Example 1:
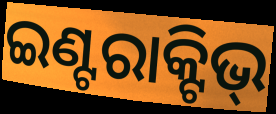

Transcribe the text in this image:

ଇଣ୍ଟରାକ୍ଟିଭ୍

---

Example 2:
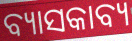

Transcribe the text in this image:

ବ୍ୟାସକାବ୍ୟ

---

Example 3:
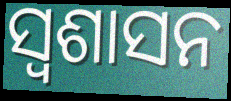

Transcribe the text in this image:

ସ୍ବଶାସନ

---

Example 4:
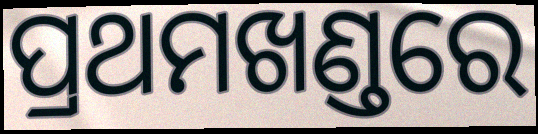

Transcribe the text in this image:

ପ୍ରଥମଖଣ୍ଡରେ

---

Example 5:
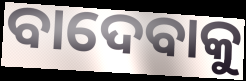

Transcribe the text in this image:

ବାଦେବାକୁ